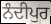
ਨੰਦੀਪੁਰ